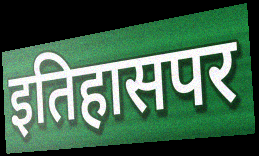
इतिहासपर